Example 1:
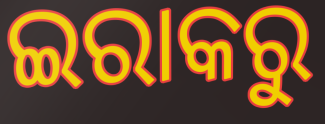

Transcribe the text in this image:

ଇରାକରୁ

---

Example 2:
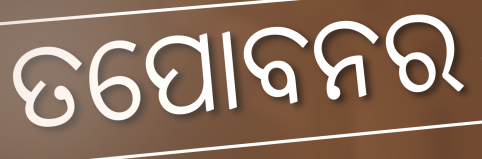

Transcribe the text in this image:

ତପୋବନର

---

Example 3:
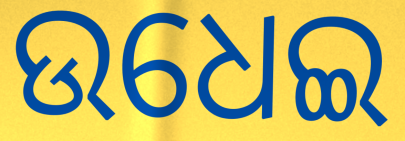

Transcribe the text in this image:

ଉଧେଇ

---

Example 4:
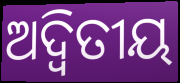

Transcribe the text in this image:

ଅଦ୍ୱିତୀୟ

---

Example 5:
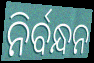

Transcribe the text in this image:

ନିର୍ବନ୍ଧନ